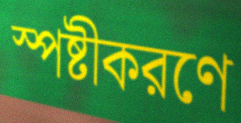
স্পষ্টীকরণে